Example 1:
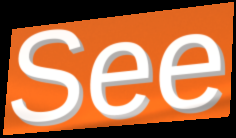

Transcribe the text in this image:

See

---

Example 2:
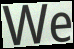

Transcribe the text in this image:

We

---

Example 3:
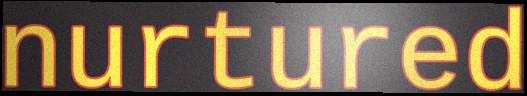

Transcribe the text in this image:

nurtured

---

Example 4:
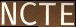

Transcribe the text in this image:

NCTE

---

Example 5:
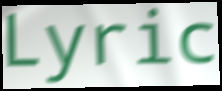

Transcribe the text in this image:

Lyric